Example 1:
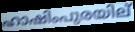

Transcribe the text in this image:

ഹാഷിംപുരയില്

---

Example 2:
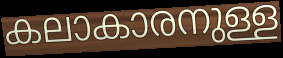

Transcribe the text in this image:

കലാകാരനുള്ള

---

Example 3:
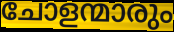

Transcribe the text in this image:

ചോളന്മാരും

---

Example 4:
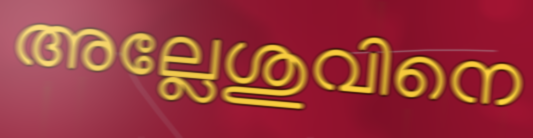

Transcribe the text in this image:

അല്ലേശുവിനെ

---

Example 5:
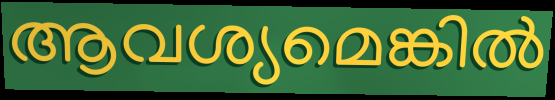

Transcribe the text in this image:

ആവശ്യമെങ്കിൽ